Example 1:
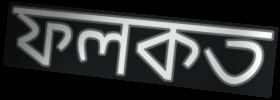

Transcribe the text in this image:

ফলকত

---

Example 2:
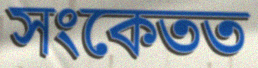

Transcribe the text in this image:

সংকেতত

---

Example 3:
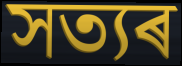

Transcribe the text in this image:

সত্যৰ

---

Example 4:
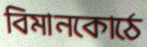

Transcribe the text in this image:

বিমানকোঠে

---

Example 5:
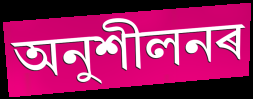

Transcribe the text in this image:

অনুশীলনৰ